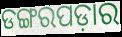
ଡଙ୍ଗରପଡ଼ାର